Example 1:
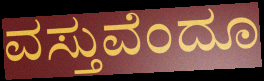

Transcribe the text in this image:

ವಸ್ತುವೆಂದೂ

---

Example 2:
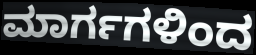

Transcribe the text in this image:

ಮಾರ್ಗಗಳಿಂದ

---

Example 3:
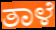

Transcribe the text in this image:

ತಾಳೆ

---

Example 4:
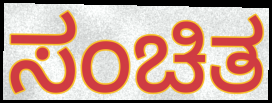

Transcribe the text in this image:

ಸಂಚಿತ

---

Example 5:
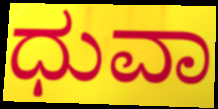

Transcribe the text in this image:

ಧುವಾ